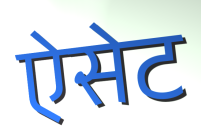
ऐसेट